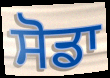
ਸੋਡਾ